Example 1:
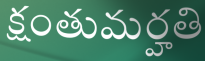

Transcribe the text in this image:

క్షంతుమర్హతి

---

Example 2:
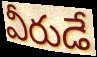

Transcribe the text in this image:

వీరుడే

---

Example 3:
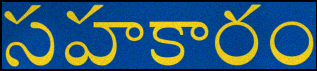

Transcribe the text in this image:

సహకారం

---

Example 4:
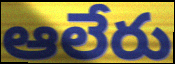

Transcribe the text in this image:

ఆలేరు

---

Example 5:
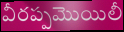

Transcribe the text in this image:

వీరప్పమొయిలీ